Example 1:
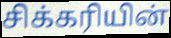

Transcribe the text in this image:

சிக்கரியின்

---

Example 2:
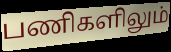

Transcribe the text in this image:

பணிகளிலும்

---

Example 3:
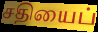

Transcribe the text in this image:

சதியைப்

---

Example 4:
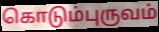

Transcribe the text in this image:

கொடும்புருவம்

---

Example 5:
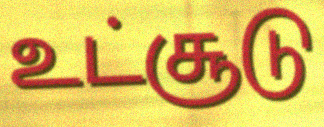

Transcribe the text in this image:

உட்சூடு